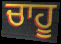
ਚਾਹੂ